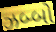
ઝબ્બો